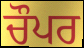
ਚੌਪਰ